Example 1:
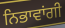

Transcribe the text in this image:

ਨਿਭਾਵਾਂਗੀ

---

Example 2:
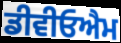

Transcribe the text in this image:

ਡੀਵੀਓਐਮ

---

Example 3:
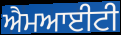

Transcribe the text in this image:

ਐਮਆਈਟੀ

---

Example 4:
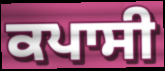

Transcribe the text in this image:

ਕਪਾਸੀ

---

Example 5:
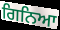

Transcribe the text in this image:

ਗਿਨਿਆ